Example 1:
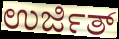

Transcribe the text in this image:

ಉರ್ಜಿತ್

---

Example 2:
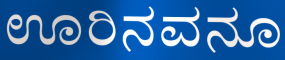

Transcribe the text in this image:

ಊರಿನವನೂ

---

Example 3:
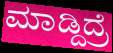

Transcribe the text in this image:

ಮಾಡ್ದಿದ್ರೆ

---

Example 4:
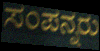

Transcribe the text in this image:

ಸಂಪನ್ನರು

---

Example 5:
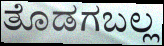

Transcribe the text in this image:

ತೊಡಗಬಲ್ಲ